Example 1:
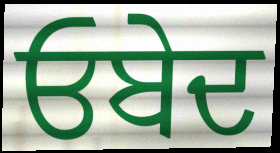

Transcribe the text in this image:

ਓਬੇਦ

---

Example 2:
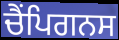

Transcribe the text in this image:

ਚੈਂਪਿਗਨਸ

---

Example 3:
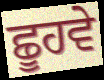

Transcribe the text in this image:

ਛੂਹਵੇ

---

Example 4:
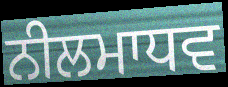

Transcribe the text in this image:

ਨੀਲਮਾਧਵ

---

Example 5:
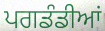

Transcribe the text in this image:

ਪਗਡੰਡੀਆਂ